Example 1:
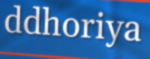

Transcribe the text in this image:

ddhoriya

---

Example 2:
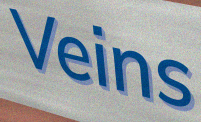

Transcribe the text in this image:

Veins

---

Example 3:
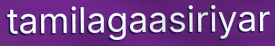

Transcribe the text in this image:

tamilagaasiriyar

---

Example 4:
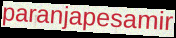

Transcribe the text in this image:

paranjapesamir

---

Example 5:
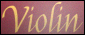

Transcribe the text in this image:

Violin